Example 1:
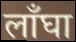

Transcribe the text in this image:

लाँघा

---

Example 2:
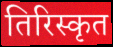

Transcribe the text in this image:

तिरिस्कृत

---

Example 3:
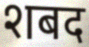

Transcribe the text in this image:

शबद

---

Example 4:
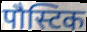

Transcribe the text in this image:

पौस्टिक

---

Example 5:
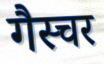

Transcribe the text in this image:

गैस्चर